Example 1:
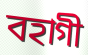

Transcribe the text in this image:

বহাগী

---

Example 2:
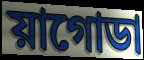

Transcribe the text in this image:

য়াগোডা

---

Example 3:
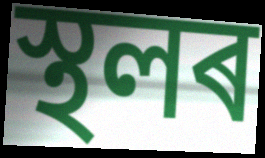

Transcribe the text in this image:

স্থলৰ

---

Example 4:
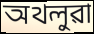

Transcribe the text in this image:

অথলুৱা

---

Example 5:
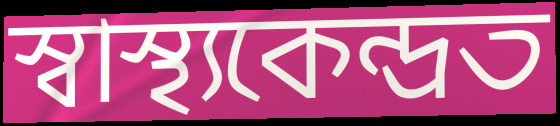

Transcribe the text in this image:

স্বাস্থ্যকেন্দ্ৰত